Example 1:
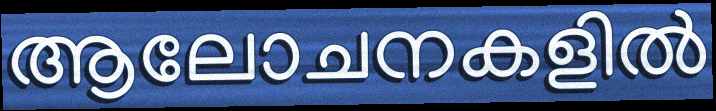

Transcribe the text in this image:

ആലോചനകളിൽ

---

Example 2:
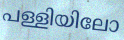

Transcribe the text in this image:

പള്ളിയിലോ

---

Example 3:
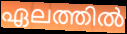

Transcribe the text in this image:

ഏലത്തിൽ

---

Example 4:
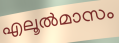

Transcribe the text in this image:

എലൂൽമാസം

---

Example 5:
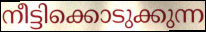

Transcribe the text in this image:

നീട്ടിക്കൊടുക്കുന്ന